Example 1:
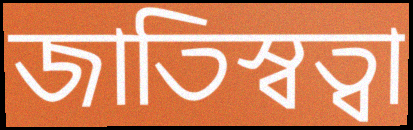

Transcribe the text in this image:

জাতিস্বত্বা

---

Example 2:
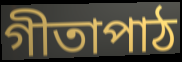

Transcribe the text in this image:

গীতাপাঠ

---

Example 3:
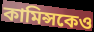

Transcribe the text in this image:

কামিন্সকেও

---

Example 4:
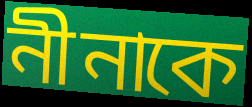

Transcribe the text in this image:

নীনাকে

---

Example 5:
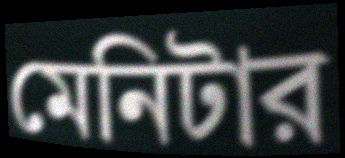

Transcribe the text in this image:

মেনিটার